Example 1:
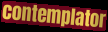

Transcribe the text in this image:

contemplator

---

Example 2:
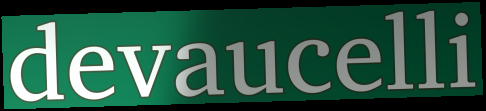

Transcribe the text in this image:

devaucelli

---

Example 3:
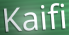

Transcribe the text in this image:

Kaifi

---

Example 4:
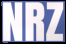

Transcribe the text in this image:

NRZ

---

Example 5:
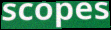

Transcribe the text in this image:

scopes